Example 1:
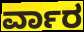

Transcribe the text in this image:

ರ್ವಾರ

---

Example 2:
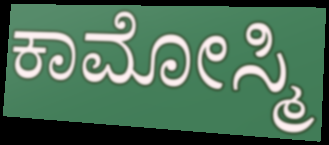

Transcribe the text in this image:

ಕಾಮೋಸ್ಮಿ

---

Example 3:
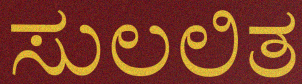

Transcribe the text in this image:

ಸುಲಲಿತ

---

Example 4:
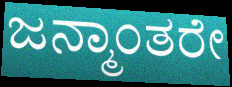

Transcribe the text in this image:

ಜನ್ಮಾಂತರೇ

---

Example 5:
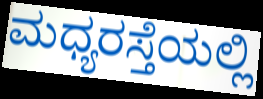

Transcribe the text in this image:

ಮಧ್ಯರಸ್ತೆಯಲ್ಲಿ